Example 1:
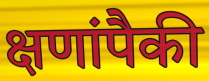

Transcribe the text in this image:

क्षणांपैकी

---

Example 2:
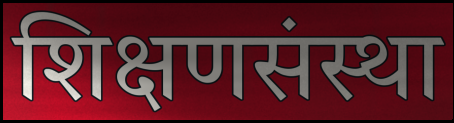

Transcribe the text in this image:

शिक्षणसंस्था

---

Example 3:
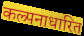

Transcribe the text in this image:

कल्पनाधारित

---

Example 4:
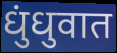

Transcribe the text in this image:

धुंधुवात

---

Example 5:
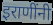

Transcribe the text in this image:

इराणींनी